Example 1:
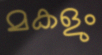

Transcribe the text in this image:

മകളും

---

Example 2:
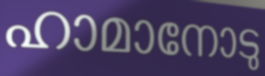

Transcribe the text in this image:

ഹാമാനോടു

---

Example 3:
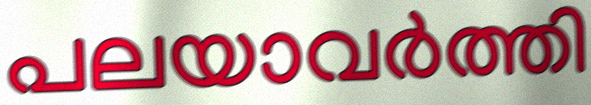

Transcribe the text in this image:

പലയാവർത്തി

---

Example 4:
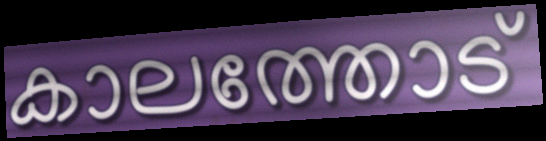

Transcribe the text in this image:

കാലത്തോട്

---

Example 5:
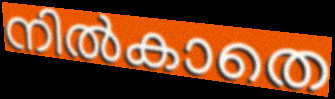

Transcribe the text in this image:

നിൽകാതെ